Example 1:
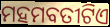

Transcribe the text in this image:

ମହମବତୀଟିଏ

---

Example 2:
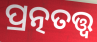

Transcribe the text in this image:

ପ୍ରତ୍ନତତ୍ତ୍ୱ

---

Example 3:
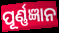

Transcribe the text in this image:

ପୂର୍ଣ୍ଣଜ୍ଞାନ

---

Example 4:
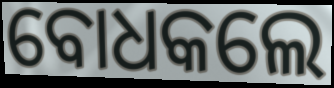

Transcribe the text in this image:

ବୋଧକଲେ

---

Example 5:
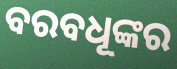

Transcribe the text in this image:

ବରବଧୂଙ୍କର